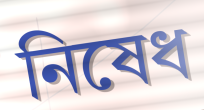
নিষেধ